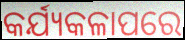
କର୍ଯ୍ୟକଳାପରେ